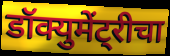
डॉक्युमेंट्रीचा